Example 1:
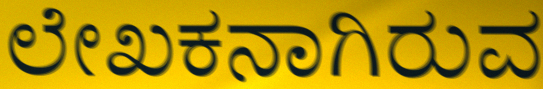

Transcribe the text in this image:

ಲೇಖಕನಾಗಿರುವ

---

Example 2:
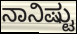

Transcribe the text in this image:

ನಾನಿಷ್ಟು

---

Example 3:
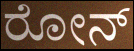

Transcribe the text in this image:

ರೋನ್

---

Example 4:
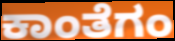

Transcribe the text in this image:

ಕಾಂತೆಗಂ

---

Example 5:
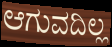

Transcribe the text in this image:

ಆಗುವದಿಲ್ಲ